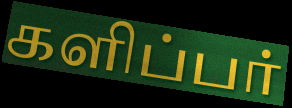
களிப்பர்